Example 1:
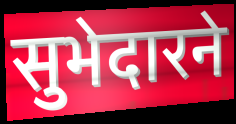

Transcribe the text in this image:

सुभेदारने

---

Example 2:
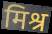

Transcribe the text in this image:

मिश्र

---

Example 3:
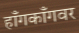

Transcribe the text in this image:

हॉंगकॉंगवर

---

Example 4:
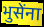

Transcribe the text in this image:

भुसेंना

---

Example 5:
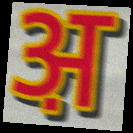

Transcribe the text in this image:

अ़